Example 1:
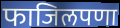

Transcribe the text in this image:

फाजिलपणा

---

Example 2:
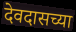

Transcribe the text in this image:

देवदासच्या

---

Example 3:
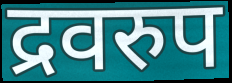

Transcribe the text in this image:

द्रवरुप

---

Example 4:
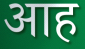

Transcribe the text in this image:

आह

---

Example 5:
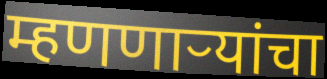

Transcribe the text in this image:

म्हणणाऱ्यांचा